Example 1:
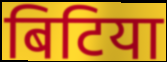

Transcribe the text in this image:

बिटिया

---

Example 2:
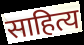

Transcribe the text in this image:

साहित्य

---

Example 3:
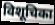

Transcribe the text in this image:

विशूचिका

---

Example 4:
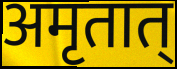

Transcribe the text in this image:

अमृतात्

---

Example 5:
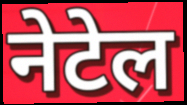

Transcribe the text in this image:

नेटेल